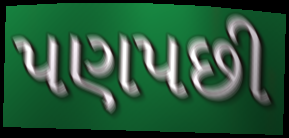
પણપછી